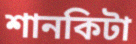
শানকিটা